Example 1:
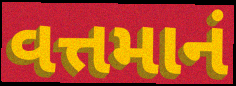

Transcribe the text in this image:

વત્તમાનં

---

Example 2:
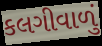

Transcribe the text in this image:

કલગીવાળું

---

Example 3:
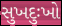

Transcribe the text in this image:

સુખદુઃખો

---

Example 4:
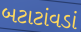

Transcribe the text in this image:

બટાટાંવડાં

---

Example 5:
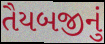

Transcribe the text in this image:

તૈયબજીનું